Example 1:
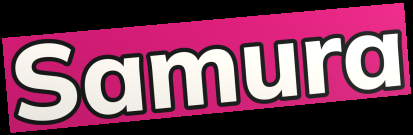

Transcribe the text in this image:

Samura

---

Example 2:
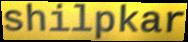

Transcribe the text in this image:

shilpkar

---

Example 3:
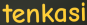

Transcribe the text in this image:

tenkasi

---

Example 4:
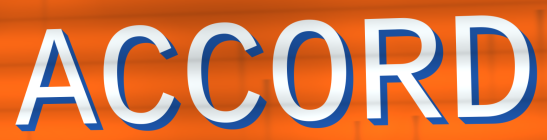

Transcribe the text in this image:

ACCORD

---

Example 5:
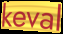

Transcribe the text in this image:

keval